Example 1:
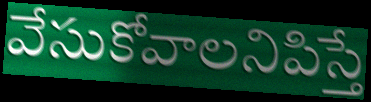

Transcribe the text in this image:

వేసుకోవాలనిపిస్తే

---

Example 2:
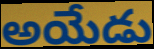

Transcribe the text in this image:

అయేడు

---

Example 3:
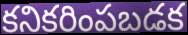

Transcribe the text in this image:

కనికరింపబడక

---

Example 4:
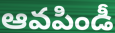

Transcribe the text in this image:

ఆవపిండీ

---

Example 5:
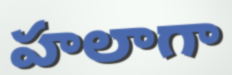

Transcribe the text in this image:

హలాగా